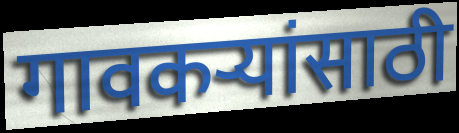
गावकऱ्यांसाठी